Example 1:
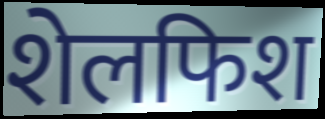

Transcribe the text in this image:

शेलफिश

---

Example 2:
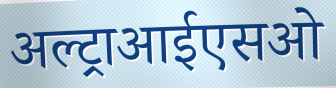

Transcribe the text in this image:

अल्ट्राआईएसओ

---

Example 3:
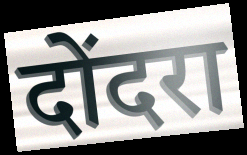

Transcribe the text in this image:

दोंदरा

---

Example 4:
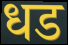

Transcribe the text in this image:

धड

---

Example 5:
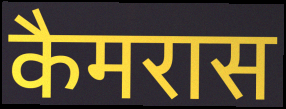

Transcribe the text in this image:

कैमरास